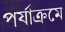
পর্যাক্রমে